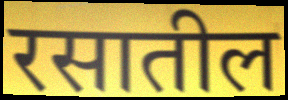
रसातील